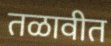
तळावीत